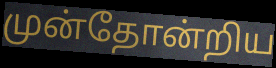
முன்தோன்றிய